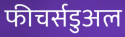
फीचर्सडुअल